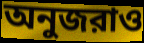
অনুজরাও